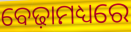
ବେଢ଼ାମଧ୍ୟରେ